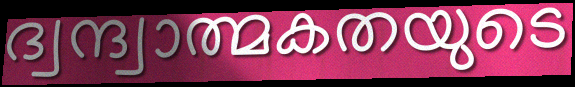
ദ്വന്ദ്വാത്മകതയുടെ